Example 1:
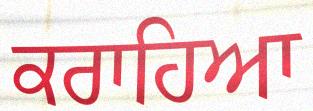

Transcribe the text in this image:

ਕਰਾਹਿਆ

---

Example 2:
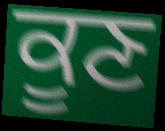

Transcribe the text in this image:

ਕੂਣ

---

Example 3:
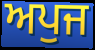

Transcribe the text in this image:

ਅਪੁਜ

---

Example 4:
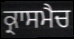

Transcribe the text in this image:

ਕ੍ਰਾਸਮੈਚ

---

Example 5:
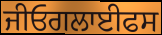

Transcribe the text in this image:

ਜੀਓਗਲਾਈਫਸ